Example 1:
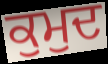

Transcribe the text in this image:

ਕੁਮੁਦ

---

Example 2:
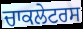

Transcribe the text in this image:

ਚਾਕਲੇਟਰਸ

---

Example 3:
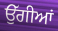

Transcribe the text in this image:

ਉੱਗੀਆਂ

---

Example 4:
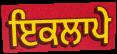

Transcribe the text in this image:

ਇਕਲਾਪੇ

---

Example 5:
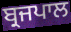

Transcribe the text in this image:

ਬ੍ਰਜਪਾਲ